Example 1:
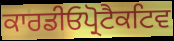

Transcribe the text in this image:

ਕਾਰਡੀਓਪ੍ਰੋਟੈਕਟਿਵ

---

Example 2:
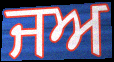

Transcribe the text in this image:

ਜਅ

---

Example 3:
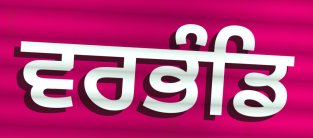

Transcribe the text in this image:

ਵਰਭੰਡਿ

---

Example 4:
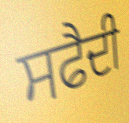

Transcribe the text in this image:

ਸਫੈਦੀ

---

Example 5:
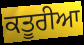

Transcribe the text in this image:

ਕਤੂਰੀਆ